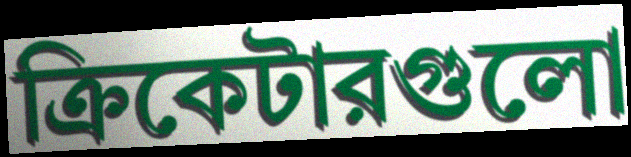
ক্রিকেটারগুলো